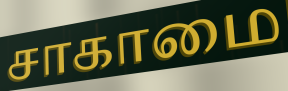
சாகாமை